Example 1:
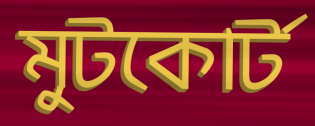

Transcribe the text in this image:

মুটকোর্ট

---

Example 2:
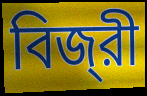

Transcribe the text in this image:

বিজ্‌রী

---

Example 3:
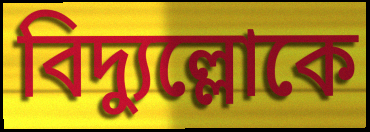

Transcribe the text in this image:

বিদ্যুল্লোকে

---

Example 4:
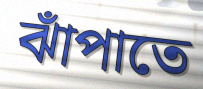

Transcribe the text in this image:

ঝাঁপাতে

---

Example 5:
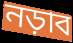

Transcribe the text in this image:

নড়াব